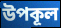
উপকূল